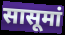
सासूमां